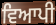
ਵਿਆਪੀ